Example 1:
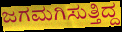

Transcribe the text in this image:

ಜಗಮಗಿಸುತ್ತಿದ್ದ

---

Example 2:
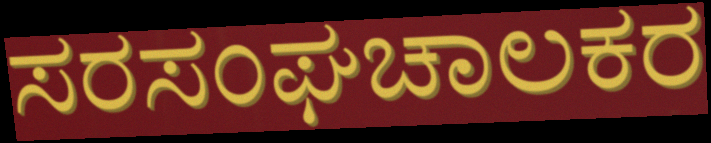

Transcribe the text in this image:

ಸರಸಂಘಚಾಲಕರ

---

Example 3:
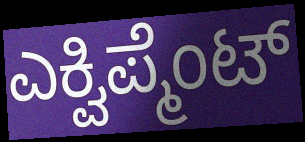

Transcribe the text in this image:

ಎಕ್ವಿಪ್ಮೆಂಟ್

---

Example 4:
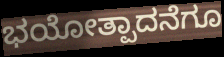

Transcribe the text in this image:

ಭಯೋತ್ಪಾದನೆಗೂ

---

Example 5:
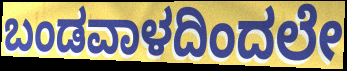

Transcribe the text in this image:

ಬಂಡವಾಳದಿಂದಲೇ